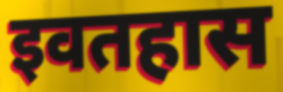
इवतहास